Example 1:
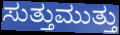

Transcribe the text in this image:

ಸುತ್ತುಮುತ್ತು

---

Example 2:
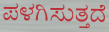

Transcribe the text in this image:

ಪಳಗಿಸುತ್ತದೆ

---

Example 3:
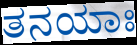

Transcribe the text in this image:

ತನಯಾಃ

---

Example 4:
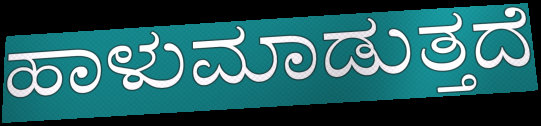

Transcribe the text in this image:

ಹಾಳುಮಾಡುತ್ತದೆ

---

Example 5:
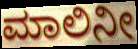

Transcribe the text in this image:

ಮಾಲಿನೀ